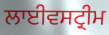
ਲਾਈਵਸਟ੍ਰੀਮ